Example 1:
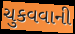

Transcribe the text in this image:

ચુકવવાની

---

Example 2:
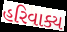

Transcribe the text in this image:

હરિવાક્ય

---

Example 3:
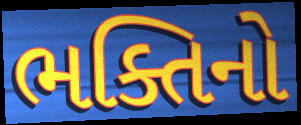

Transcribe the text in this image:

ભક્તિનો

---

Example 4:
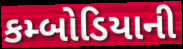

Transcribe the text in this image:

કમ્બોડિયાની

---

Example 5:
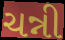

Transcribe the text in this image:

ચન્ની